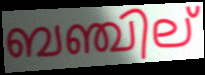
ബഞ്ചില്